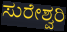
ಸುರೇಶ್ವರಿ